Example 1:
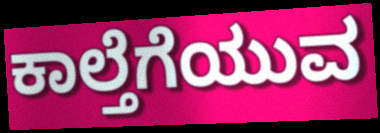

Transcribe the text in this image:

ಕಾಲ್ತೆಗೆಯುವ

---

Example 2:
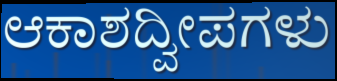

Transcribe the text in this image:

ಆಕಾಶದ್ವೀಪಗಳು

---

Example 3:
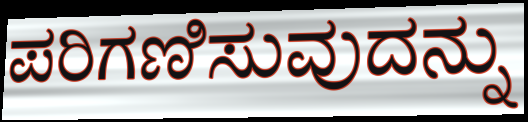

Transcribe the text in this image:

ಪರಿಗಣಿಸುವುದನ್ನು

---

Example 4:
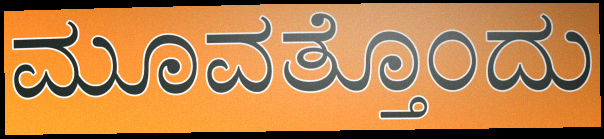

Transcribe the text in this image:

ಮೂವತ್ತೊಂದು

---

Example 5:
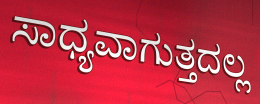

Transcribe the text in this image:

ಸಾಧ್ಯವಾಗುತ್ತದಲ್ಲ